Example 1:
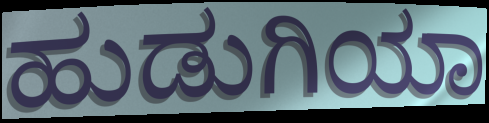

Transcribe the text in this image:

ಹುಡುಗಿಯಾ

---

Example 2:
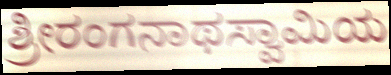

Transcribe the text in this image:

ಶ್ರೀರಂಗನಾಥಸ್ವಾಮಿಯ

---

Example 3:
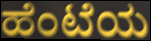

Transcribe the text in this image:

ಹೆಂಟೆಯ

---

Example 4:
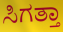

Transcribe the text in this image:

ಸಿಗತ್ತಾ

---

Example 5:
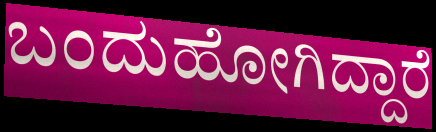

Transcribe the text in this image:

ಬಂದುಹೋಗಿದ್ದಾರೆ